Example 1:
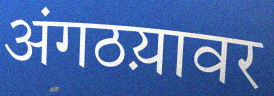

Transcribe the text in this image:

अंगठय़ावर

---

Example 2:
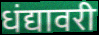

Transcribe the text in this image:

धंद्यावरी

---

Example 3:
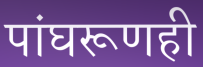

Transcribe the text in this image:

पांघरूणही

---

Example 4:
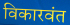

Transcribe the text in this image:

विकारवंत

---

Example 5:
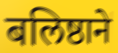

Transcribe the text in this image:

बलिष्ठाने